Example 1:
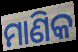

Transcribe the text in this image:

ମାଣିକ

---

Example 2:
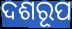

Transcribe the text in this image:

ଦଶରୂପ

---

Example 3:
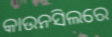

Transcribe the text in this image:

କାଉନସିଲରେ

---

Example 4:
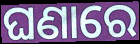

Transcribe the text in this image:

ଘଣାରେ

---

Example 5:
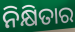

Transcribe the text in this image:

ନିକ୍ଷିତାର